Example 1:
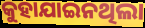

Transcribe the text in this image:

କୁହାଯାଇନଥିଲା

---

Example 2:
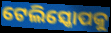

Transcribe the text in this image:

ଟେଲିସ୍କୋପକୁ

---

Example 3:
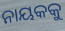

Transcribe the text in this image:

ନାୟକକୁ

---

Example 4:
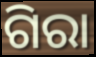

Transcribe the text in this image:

ଗିରା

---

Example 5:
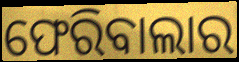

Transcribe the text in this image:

ଫେରିବାଲାର